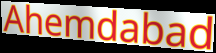
Ahemdabad